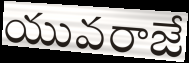
యువరాజే